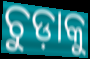
ଚୁଡ଼ାକୁ